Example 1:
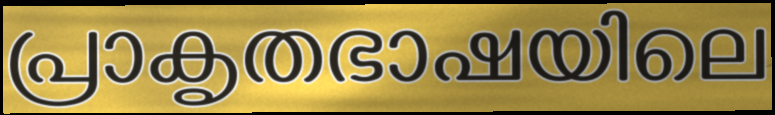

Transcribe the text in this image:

പ്രാകൃതഭാഷയിലെ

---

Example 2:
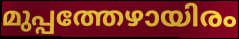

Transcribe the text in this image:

മുപ്പത്തേഴായിരം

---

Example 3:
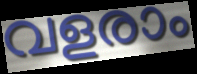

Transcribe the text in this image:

വളരാം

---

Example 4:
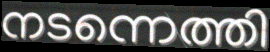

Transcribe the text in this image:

നടന്നെത്തി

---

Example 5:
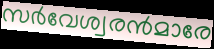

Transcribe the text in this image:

സർവേശ്വരൻമാരേ